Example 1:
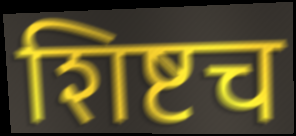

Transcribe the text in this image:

शिष्टच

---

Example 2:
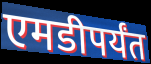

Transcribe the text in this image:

एमडीपर्यंत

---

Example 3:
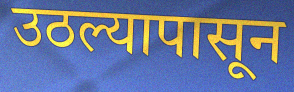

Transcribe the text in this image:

उठल्यापासून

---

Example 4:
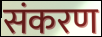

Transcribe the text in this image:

संकरण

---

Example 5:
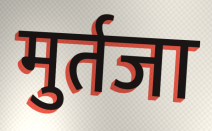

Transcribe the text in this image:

मुर्तजा